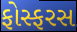
ફોસ્ફરસ